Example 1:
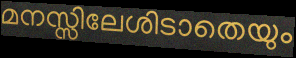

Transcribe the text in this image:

മനസ്സിലേശിടാതെയും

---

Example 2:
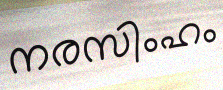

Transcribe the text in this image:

നരസിംഹം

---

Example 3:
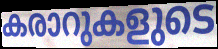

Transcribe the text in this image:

കരാറുകളുടെ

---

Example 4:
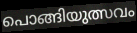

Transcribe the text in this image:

പൊങ്ങിയുത്സവം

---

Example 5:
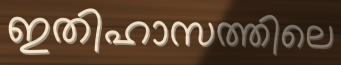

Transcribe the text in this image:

ഇതിഹാസത്തിലെ